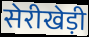
सेरीखेड़ी